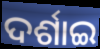
ଦର୍ଶାଇ